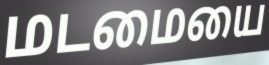
மடமையை